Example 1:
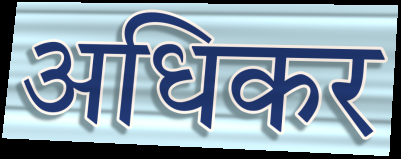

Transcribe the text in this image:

अधिकर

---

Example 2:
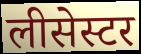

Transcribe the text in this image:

लीसेस्टर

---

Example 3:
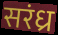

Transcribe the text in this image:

सरंध्र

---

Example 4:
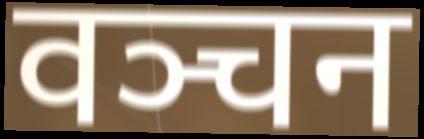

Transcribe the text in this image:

वञ्चन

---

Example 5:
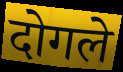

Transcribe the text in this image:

दोगले